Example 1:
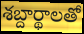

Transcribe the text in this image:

శబ్దార్థాలతో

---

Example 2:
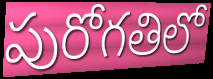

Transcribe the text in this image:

పురోగతిలో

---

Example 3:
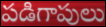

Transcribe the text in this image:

పడిగాపులు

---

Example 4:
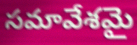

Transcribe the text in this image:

సమావేశమై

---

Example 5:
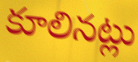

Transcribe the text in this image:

కూలినట్లు